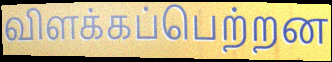
விளக்கப்பெற்றன